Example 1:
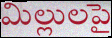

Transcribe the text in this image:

మిల్లులపై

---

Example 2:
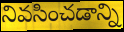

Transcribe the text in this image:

నివసించడాన్ని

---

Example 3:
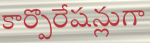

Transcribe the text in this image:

కార్పొరేషన్లుగా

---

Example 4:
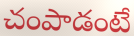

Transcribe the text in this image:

చంపాడంటే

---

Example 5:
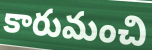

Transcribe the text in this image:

కారుమంచి